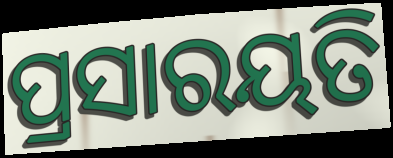
ପ୍ରସାରୟତି